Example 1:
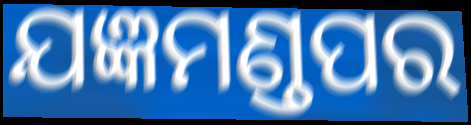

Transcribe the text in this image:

ଯଜ୍ଞମଣ୍ଡପର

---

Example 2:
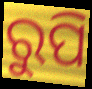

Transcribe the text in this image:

ରୁପି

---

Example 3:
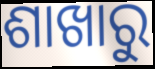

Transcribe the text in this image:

ଶାଖାରୁ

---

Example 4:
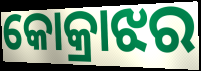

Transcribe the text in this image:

କୋକ୍ରାଝର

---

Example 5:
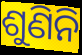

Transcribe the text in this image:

ଶୁଣିନି